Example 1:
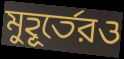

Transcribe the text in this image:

মুহূর্তেরও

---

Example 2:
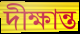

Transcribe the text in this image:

দীক্ষান্ত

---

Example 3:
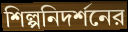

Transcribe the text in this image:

শিল্পনিদর্শনের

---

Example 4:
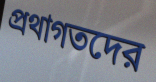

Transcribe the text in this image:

প্রথাগতদের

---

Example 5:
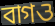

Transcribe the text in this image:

বাগও